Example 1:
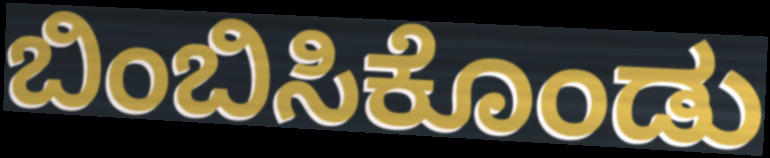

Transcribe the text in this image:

ಬಿಂಬಿಸಿಕೊಂಡು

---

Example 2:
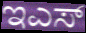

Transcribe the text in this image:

ಇಎಸ್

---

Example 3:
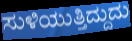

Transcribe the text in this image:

ಸುಳಿಯುತ್ತಿದ್ದುದು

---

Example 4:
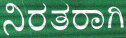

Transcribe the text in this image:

ನಿರತರಾಗಿ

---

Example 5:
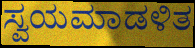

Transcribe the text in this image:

ಸ್ವಯಮಾಡಳಿತ